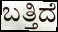
ಬತ್ತಿದೆ